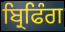
ਬ੍ਰਿਫਿੰਗ